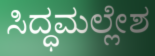
ಸಿದ್ಧಮಲ್ಲೇಶ